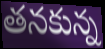
తనకున్న